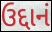
ઉદ્દાનં